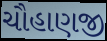
ચૌહાણજી